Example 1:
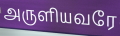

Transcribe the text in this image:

அருளியவரே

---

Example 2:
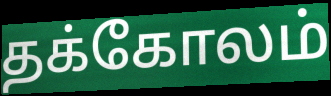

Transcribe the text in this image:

தக்கோலம்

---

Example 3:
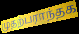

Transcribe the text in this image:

முதற்பராந்தக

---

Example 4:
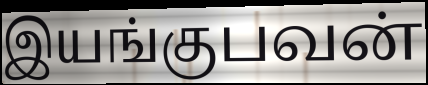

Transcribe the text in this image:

இயங்குபவன்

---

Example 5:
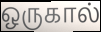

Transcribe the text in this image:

ஒருகால்